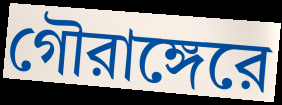
গৌরাঙ্গেরে